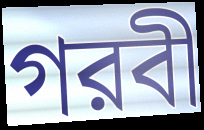
গরবী